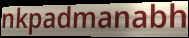
nkpadmanabh